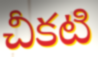
చీకటి